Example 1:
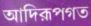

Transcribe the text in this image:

আদিরূপগত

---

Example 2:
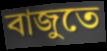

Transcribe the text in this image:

বাজুতে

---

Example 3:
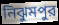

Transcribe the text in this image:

নিঝুমপুর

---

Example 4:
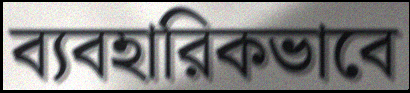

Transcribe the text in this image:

ব্যবহারিকভাবে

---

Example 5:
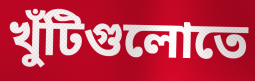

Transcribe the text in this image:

খুঁটিগুলোতে